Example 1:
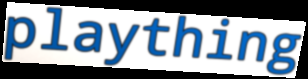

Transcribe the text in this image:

plaything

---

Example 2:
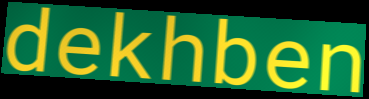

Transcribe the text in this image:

dekhben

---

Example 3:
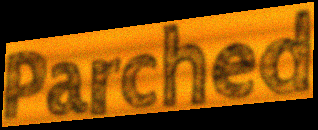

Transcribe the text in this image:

Parched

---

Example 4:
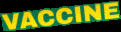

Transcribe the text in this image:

VACCINE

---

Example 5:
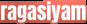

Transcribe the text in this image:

ragasiyam